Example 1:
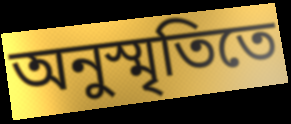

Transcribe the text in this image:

অনুস্মৃতিতে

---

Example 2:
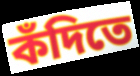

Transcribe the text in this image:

কঁদিতে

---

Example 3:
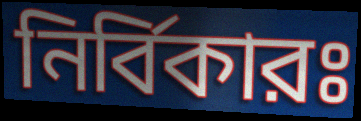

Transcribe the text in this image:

নির্বিকারঃ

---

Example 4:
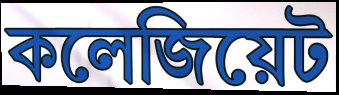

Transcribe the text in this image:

কলেজিয়েট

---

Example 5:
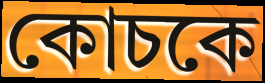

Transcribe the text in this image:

কোচকে